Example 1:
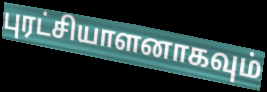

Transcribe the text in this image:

புரட்சியாளனாகவும்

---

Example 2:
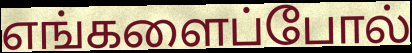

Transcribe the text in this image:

எங்களைப்போல்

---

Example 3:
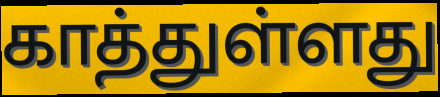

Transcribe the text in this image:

காத்துள்ளது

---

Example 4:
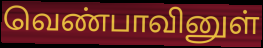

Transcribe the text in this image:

வெண்பாவினுள்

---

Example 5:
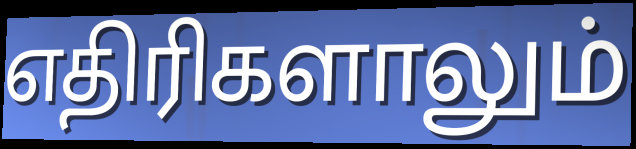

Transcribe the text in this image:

எதிரிகளாலும்